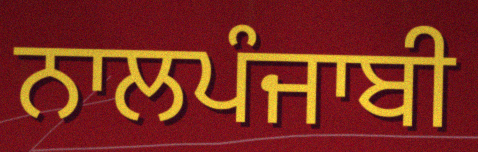
ਨਾਲਪੰਜਾਬੀ